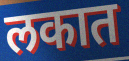
लकात